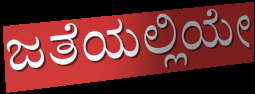
ಜತೆಯಲ್ಲಿಯೇ